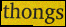
thongs